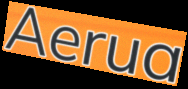
Aerua